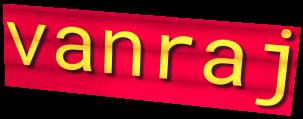
vanraj